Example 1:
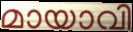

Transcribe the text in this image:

മായാവി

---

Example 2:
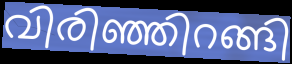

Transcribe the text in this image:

വിരിഞ്ഞിറങ്ങി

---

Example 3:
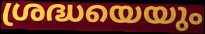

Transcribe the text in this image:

ശ്രദ്ധയെയും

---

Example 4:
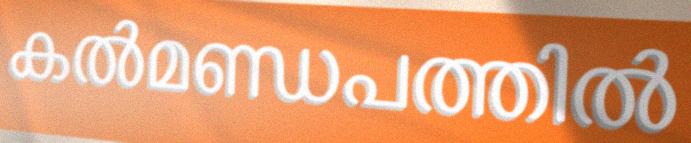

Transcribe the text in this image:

കൽമണ്ഡപത്തിൽ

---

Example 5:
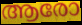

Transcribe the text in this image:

ആരോ